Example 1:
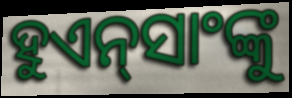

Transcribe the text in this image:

ହୁଏନ୍‌ସାଂଙ୍କୁ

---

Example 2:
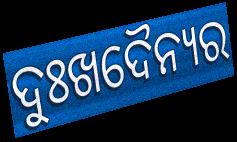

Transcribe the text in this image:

ଦୁଃଖଦୈନ୍ୟର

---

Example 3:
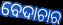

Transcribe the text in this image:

ବେଦାଚାର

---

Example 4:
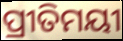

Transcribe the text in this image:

ପ୍ରୀତିମୟୀ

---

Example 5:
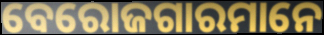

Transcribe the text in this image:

ବେରୋଜଗାରମାନେ